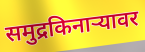
समुद्रकिनाऱ्यावर